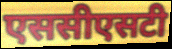
एससीएसटी